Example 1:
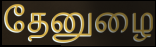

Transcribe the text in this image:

தேனுழை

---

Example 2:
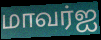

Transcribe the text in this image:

மாவர்ஐ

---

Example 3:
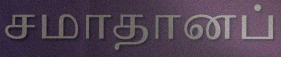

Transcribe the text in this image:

சமாதானப்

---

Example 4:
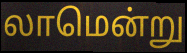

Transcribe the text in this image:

லாமென்று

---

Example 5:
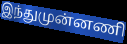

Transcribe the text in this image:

இந்துமுன்னணி